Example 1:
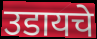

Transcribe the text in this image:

उडायचे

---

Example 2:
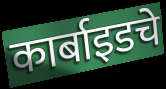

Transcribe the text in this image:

कार्बाइडचे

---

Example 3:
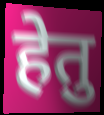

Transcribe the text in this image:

हेतु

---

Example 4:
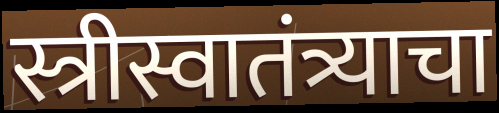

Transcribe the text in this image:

स्त्रीस्वातंत्र्याचा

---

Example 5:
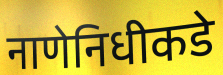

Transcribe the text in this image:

नाणेनिधीकडे